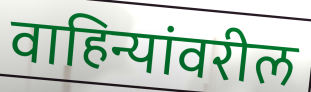
वाहिन्यांवरील